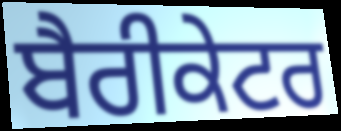
ਬੈਰੀਕੇਟਰ